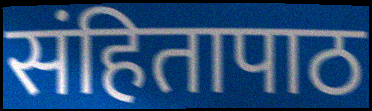
संहितापाठ